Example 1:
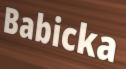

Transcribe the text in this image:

Babicka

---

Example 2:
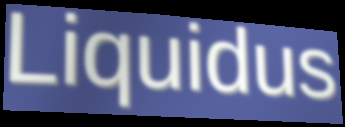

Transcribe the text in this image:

Liquidus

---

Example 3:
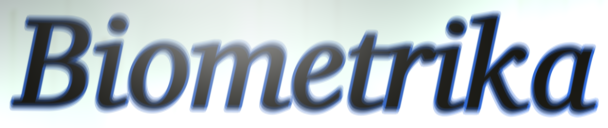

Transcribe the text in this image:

Biometrika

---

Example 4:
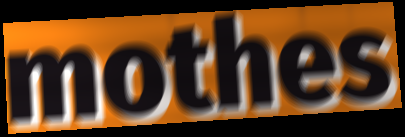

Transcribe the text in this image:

mothes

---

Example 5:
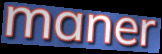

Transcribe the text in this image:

maner